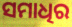
ସମାଧିର